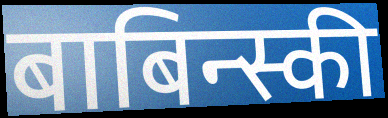
बाबिन्स्की